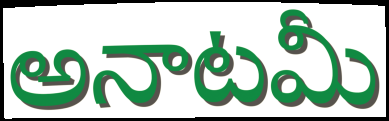
అనాటమీ